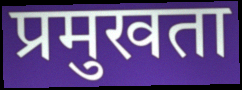
प्रमुखता